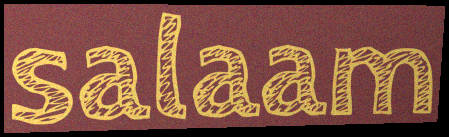
salaam